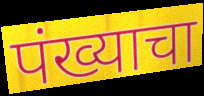
पंख्याचा